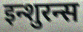
इन्शुरन्स